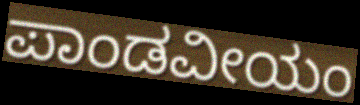
ಪಾಂಡವೀಯಂ